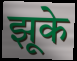
झूके